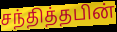
சந்தித்தபின்